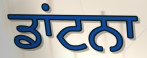
ਡਾਂਟਨਾ